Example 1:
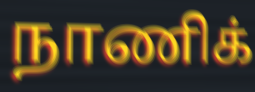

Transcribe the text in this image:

நாணிக்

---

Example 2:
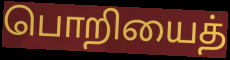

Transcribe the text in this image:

பொறியைத்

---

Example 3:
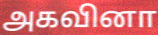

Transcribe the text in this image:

அகவினா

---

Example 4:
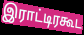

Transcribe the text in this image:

இராட்டிரகூட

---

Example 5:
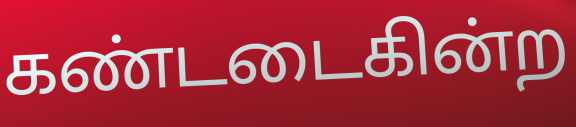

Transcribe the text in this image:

கண்டடைகின்ற